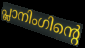
പ്ലാനിംഗിന്റെ